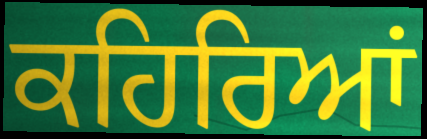
ਕਹਿਰਿਆਂ